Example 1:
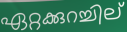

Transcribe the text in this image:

ഏറ്റക്കുറച്ചില്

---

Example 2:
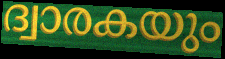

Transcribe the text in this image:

ദ്വാരകയും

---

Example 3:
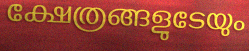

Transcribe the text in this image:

ക്ഷേത്രങ്ങളുടേയും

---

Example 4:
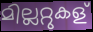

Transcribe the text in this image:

മില്ലറ്റുകള്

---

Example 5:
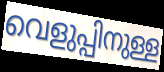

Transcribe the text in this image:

വെളുപ്പിനുള്ള